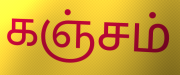
கஞ்சம்